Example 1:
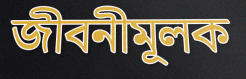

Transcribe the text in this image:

জীবনীমূলক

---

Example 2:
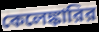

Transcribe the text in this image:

কেলেঙ্কারির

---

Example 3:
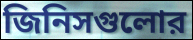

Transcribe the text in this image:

জিনিসগুলোর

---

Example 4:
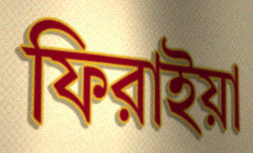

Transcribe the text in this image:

ফিরাইয়া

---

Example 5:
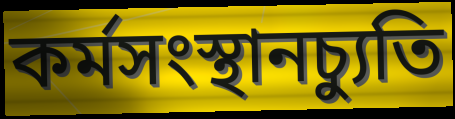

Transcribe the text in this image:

কর্মসংস্থানচ্যুতি